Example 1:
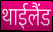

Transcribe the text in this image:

थाईलैंड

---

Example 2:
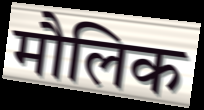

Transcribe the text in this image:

मौलिक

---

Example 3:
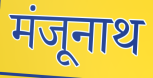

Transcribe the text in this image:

मंजूनाथ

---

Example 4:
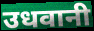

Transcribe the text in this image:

उधवानी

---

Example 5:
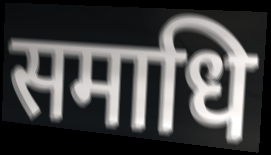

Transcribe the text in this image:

समाधि